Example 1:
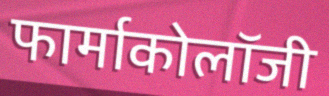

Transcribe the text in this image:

फार्माकोलॉजी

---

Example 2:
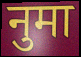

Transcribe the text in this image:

नुमा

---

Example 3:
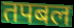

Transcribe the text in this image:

तपबल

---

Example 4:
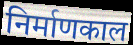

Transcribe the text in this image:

निर्माणकाल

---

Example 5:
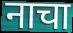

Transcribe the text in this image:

नाचा